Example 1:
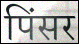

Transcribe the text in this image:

पिंसर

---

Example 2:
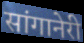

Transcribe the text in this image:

सांगानेरी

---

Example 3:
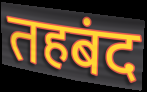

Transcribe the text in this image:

तहबंद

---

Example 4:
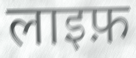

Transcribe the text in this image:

लाइफ़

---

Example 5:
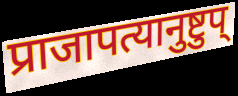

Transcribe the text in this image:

प्राजापत्यानुष्टुप्